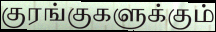
குரங்குகளுக்கும்